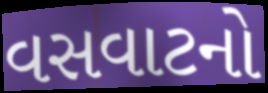
વસવાટનો